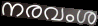
നരവംശ